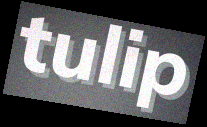
tulip